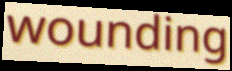
wounding